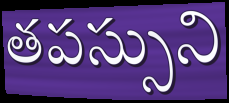
తపస్సుని